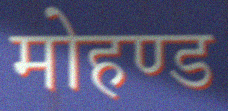
मोहण्ड